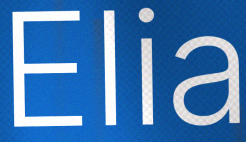
Elia